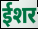
ईशर